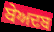
ਬੇਅਦਬ